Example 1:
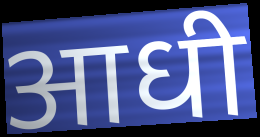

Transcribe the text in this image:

आधी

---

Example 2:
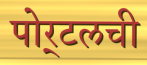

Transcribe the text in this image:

पोर्टलची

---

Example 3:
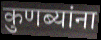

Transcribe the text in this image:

कुणब्यांना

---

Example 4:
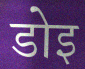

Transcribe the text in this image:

डोइ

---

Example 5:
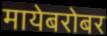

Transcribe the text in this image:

मायेबरोबर